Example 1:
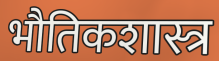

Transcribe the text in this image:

भौतिकशास्त्र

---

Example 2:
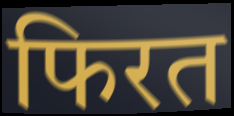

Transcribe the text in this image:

फिरत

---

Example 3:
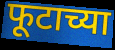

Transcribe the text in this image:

फूटाच्या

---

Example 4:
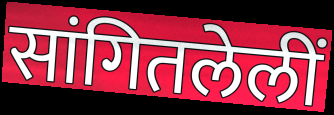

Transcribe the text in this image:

सांगितलेलीं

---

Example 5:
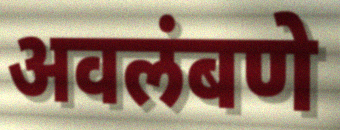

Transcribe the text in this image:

अवलंबणे